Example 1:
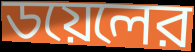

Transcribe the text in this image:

ডয়েলের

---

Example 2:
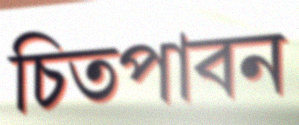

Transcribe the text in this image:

চিতপাবন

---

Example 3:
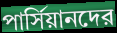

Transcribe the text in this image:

পার্সিয়ানদের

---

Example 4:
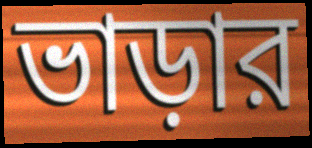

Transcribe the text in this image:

ভাড়ার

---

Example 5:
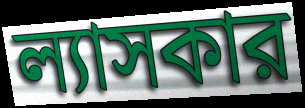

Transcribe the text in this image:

ল্যাসকার